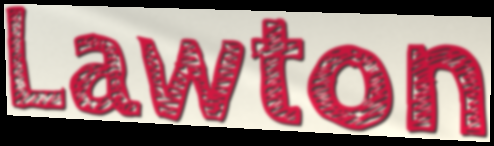
Lawton